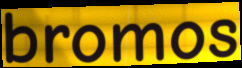
bromos